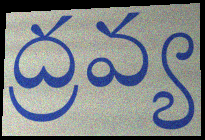
ద్రవ్య